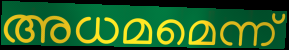
അധമമെന്ന്